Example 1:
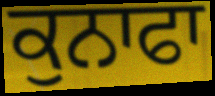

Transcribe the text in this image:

ਕੁਨਾਫਾ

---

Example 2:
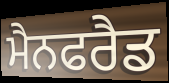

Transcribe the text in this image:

ਮੈਨਫਰੈਡ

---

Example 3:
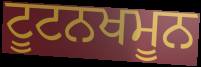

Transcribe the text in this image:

ਟੂਟਨਖਮੂਨ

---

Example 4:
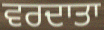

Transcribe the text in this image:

ਵਰਦਾਤਾ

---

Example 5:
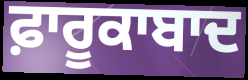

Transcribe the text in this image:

ਫ਼ਾਰੂਕਾਬਾਦ